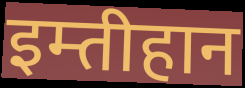
इम्तीहान